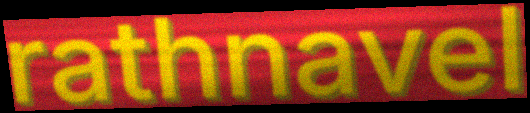
rathnavel